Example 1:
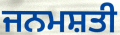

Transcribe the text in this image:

ਜਨਮਸ਼ਤੀ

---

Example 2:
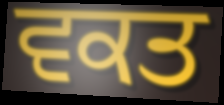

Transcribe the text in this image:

ਵਕਤ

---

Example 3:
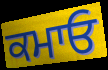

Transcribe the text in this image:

ਕਮਾਓ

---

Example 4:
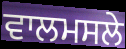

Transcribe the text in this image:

ਵਾਲਮਸਲੇ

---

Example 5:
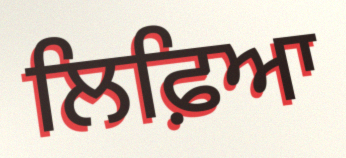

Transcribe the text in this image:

ਲਿਫ਼ਿਆ